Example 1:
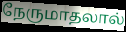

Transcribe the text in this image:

நேருமாதலால்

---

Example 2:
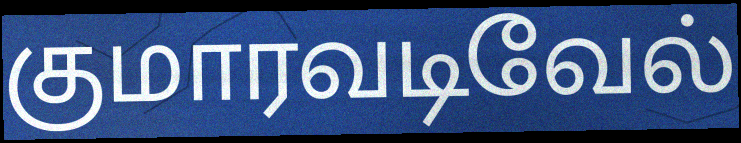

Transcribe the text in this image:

குமாரவடிவேல்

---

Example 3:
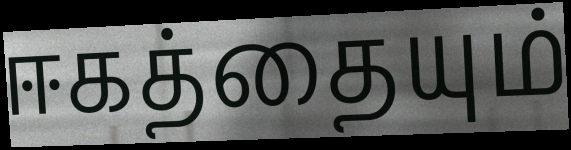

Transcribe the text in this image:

ஈகத்தையும்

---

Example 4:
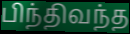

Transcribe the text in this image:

பிந்திவந்த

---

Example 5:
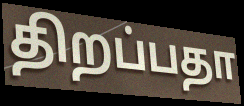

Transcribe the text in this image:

திறப்பதா